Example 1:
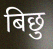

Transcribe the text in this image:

बिछु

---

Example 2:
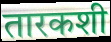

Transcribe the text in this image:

तारकशी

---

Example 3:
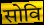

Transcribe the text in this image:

सोवि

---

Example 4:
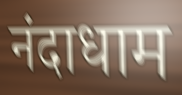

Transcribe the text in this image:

नंदाधाम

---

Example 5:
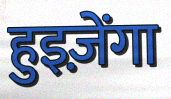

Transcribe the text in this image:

हुइज़ेंगा